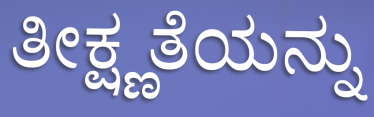
ತೀಕ್ಷ್ಣತೆಯನ್ನು